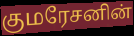
குமரேசனின்